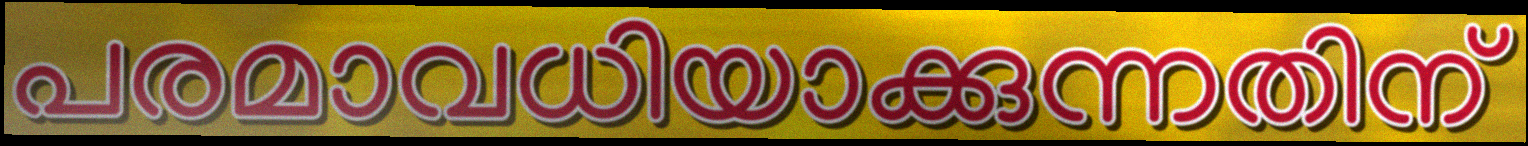
പരമാവധിയാക്കുന്നതിന്